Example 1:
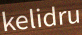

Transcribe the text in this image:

kelidru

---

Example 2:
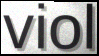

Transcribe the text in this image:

viol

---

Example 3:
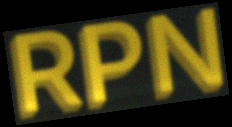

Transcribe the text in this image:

RPN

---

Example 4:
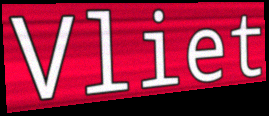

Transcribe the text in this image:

Vliet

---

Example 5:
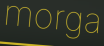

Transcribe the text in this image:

morga